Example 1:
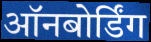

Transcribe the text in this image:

ऑनबोर्डिंग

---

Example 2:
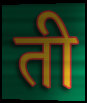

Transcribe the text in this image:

ती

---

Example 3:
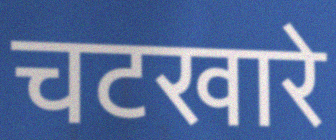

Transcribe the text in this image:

चटखारे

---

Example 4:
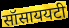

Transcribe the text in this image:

सॉसाययटी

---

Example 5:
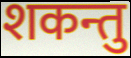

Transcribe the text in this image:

शकन्तु